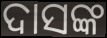
ଦାସଙ୍କ